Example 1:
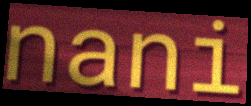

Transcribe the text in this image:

nani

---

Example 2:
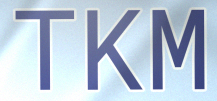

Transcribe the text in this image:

TKM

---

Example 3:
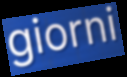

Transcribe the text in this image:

giorni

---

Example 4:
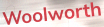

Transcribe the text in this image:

Woolworth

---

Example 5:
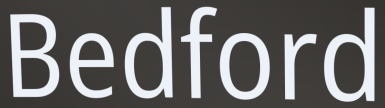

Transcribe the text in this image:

Bedford